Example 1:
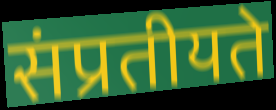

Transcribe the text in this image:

संप्रतीयते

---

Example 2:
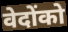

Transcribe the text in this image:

वेदोंको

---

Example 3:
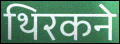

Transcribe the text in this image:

थिरकने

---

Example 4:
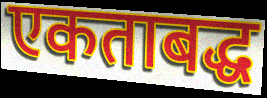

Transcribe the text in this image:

एकताबद्ध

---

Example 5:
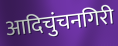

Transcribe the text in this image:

आदिचुंचनगिरी